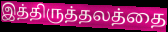
இத்திருத்தலத்தை